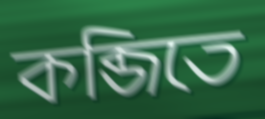
কব্জিতে